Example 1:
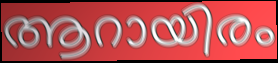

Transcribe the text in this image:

ആറായിരം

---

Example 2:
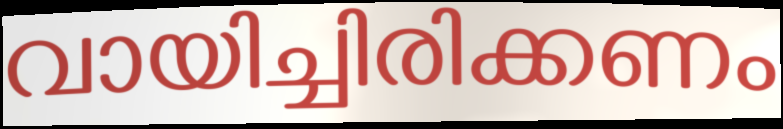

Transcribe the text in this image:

വായിച്ചിരിക്കണം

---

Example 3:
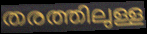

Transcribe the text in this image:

തരത്തിലുള്ള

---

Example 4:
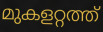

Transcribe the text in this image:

മുകളറ്റത്ത്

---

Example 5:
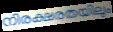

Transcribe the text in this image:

നിരക്ഷരതയിലും